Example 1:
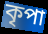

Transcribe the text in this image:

কৃপা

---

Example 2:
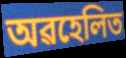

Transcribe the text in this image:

অৱহেলিত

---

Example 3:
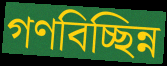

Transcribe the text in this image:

গণবিচ্ছিন্ন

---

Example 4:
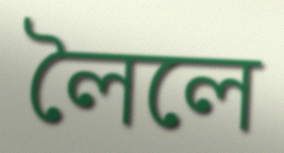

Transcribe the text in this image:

লৈলে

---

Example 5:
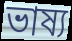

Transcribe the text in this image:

ভাষ্য